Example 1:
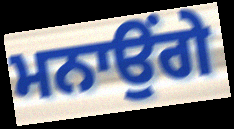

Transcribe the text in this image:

ਮਨਾਉਂਗੇ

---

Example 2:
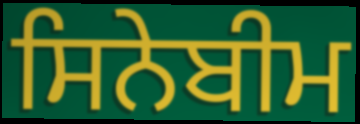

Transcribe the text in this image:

ਸਿਨੇਬੀਮ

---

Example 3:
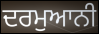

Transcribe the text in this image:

ਦਰਮੁਆਨੀ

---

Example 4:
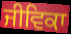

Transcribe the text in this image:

ਜੀਵਿਕਾ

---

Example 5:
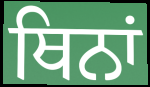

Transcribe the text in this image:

ਥਿਨਾਂ